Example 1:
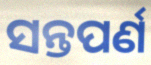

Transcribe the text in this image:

ସନ୍ତପର୍ଣ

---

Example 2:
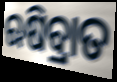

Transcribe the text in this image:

ଋଷିବ୍ରାତ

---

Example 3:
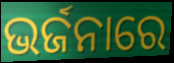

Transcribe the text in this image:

ଭର୍ଜନାରେ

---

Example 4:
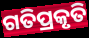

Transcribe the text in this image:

ଗତିପ୍ରକୃତି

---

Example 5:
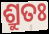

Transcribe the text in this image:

ଶ୍ରୁତଃ